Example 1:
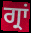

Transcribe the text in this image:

ਗ੍ਰਾਂ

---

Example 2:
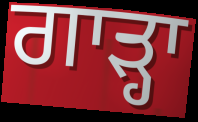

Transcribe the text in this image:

ਗਾੜ੍ਹਾ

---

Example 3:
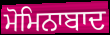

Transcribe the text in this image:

ਮੋਮਿਨਾਬਾਦ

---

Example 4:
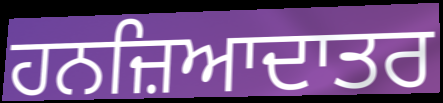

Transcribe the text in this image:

ਹਨਜ਼ਿਆਦਾਤਰ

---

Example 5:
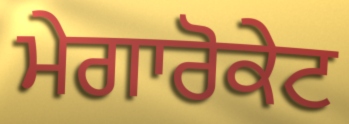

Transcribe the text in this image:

ਮੇਗਾਰੋਕੇਟ